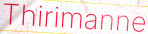
Thirimanne